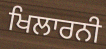
ਖਿਲਾਰਨੀ